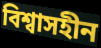
বিশ্বাসহীন